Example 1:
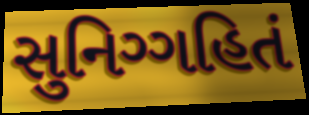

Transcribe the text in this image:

સુનિગ્ગહિતં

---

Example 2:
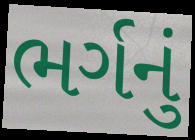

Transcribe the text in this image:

ભર્ગનું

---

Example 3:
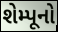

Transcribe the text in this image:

શેમ્પૂનો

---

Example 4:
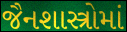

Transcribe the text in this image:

જૈનશાસ્ત્રોમાં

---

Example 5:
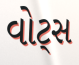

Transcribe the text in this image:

વોટ્સ